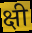
क्षी